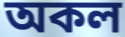
অকল